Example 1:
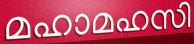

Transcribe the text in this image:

മഹാമഹസി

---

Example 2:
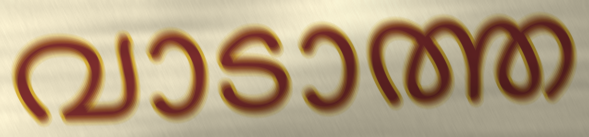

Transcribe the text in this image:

വാടാത്ത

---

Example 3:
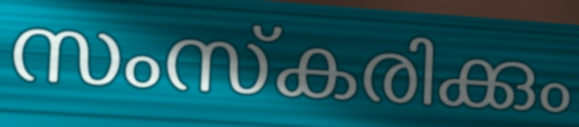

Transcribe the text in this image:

സംസ്‌കരിക്കും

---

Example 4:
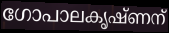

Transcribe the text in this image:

ഗോപാലകൃഷ്ണന്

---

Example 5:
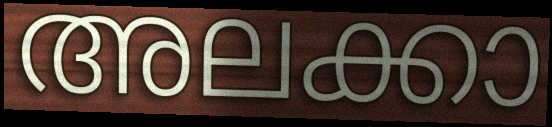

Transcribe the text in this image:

അലക്കാ